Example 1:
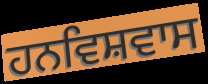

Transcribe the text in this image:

ਹਨਵਿਸ਼ਵਾਸ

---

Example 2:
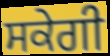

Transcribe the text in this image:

ਸਕੇਗੀ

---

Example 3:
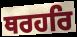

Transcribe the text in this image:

ਥਰਹਰਿ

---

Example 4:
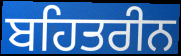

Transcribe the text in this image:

ਬਹਿਤਰੀਨ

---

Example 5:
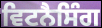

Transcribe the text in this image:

ਵਿਟਨੈਸਿੰਗ